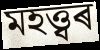
মহত্ত্বৰ